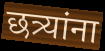
छत्र्यांना